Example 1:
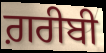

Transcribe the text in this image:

ਗ਼ਰੀਬੀ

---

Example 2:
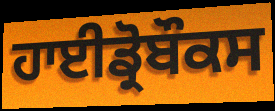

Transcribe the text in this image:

ਹਾਈਡ੍ਰੋਬੌਕਸ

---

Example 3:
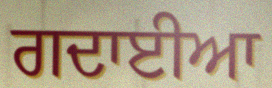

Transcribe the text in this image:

ਗਦਾਈਆ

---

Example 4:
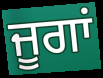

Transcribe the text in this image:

ਜੂਗਾਂ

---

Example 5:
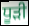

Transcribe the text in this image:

ਧੂੜੀ